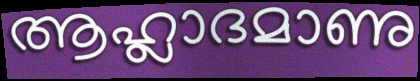
ആഹ്ലാദമാണു